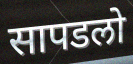
सापडलो